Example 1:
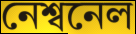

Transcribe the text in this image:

নেশ্বনেল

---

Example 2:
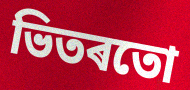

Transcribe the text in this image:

ভিতৰতো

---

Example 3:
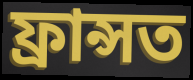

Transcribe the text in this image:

ফ্ৰান্সত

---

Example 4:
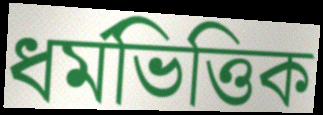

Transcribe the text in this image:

ধৰ্মভিত্তিক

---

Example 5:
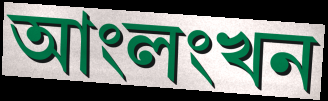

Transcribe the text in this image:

আংলংখন